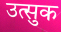
उत्‍सुक